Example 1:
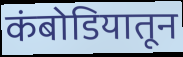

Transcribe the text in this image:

कंबोडियातून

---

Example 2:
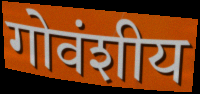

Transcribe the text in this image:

गोवंशीय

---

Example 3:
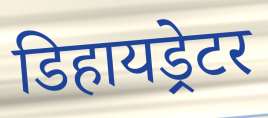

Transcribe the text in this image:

डिहायड्रेटर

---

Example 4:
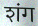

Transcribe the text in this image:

शंग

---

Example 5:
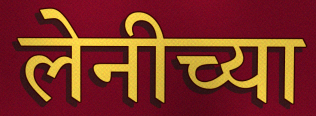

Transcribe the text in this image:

लेनीच्या